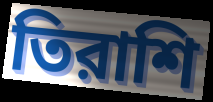
তিরাশি